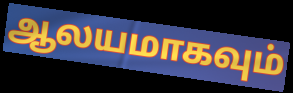
ஆலயமாகவும்